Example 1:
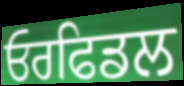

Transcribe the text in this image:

ਓਰਫਿਡਲ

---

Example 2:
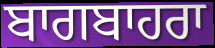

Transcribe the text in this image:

ਬਾਗਬਾਹਰਾ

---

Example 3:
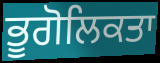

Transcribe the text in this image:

ਭੂਗੋਲਿਕਤਾ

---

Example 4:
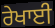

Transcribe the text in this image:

ਰੇਖਾਈ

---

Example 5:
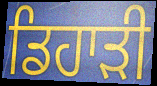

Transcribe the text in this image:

ਡਿਹਾੜੀ